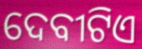
ଦେବୀଟିଏ